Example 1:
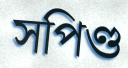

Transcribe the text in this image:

সপিণ্ড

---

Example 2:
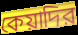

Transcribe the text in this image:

কেয়াদির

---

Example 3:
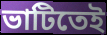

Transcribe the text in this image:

ভাটিতেই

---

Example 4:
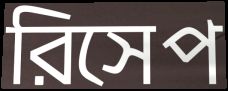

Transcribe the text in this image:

রিসেপ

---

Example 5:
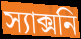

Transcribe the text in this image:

স্যাক্সনি